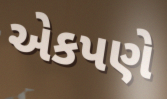
એકપણે